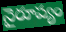
నైరూప్యం